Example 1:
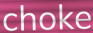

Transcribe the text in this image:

choke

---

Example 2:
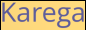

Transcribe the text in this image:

Karega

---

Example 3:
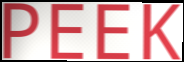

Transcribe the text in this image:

PEEK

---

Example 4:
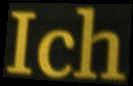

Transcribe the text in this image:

Ich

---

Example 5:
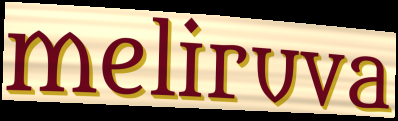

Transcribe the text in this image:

meliruva